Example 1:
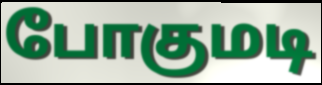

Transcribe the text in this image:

போகுமடி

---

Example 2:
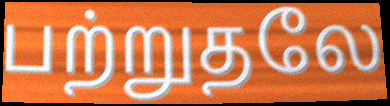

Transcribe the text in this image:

பற்றுதலே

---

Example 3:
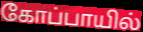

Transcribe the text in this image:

கோப்பாயில்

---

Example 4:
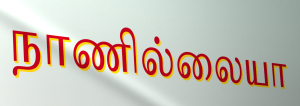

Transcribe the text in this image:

நாணில்லையா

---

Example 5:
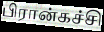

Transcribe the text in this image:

பிரான்கச்சி